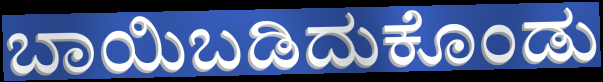
ಬಾಯಿಬಡಿದುಕೊಂಡು